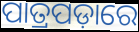
ପାତ୍ରପଡ଼ାରେ